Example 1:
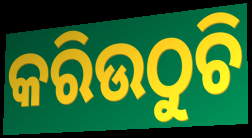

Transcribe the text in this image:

କରିଉଠୁଚି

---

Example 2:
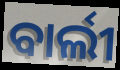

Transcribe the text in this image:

ବାର୍ଲୀ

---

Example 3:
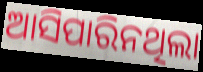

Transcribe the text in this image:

ଆସିପାରିନଥିଲା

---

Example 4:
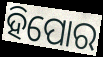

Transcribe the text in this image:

ହିପୋର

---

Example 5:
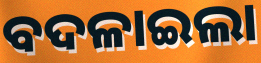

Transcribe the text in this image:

ବଦଳାଇଲା